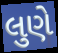
લુણે